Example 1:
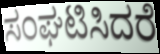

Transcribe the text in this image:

ಸಂಘಟಿಸಿದರೆ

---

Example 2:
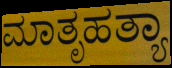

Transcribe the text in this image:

ಮಾತೃಹತ್ಯಾ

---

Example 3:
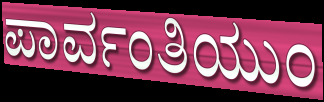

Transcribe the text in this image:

ಪಾರ್ವಂತಿಯುಂ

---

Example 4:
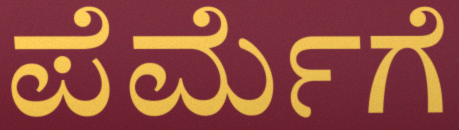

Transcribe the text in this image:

ಪೆರ್ಮೆಗೆ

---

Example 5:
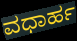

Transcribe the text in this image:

ವಧಾರ್ಹ